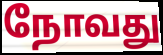
நோவது